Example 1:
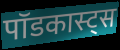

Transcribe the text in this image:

पॉडकास्ट्स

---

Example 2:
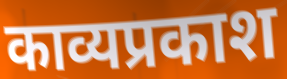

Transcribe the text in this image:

काव्यप्रकाश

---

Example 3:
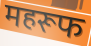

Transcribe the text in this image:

महरूफ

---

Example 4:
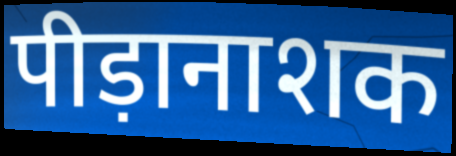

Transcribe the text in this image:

पीड़ानाशक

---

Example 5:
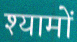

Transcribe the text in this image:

श्यामों